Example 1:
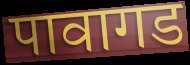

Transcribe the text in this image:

पावागड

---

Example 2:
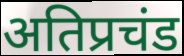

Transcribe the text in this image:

अतिप्रचंड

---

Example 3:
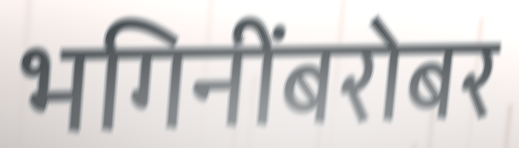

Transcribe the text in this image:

भगिनींबरोबर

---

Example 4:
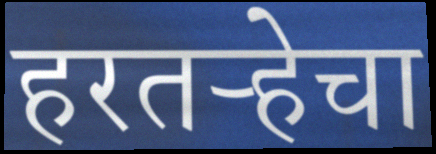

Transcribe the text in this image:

हरतऱ्हेचा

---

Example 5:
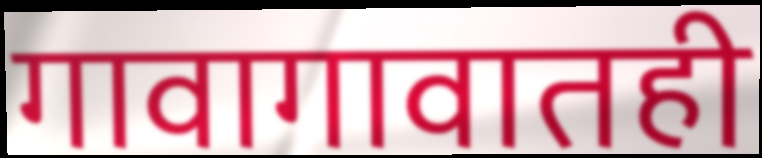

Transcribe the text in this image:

गावागावातही